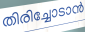
തിരിച്ചോടാൻ